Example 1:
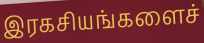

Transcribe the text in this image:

இரகசியங்களைச்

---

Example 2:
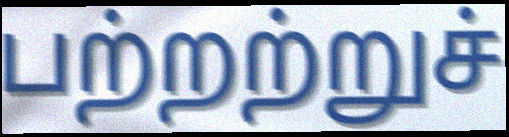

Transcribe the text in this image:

பற்றற்றுச்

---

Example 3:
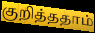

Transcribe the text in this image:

குறித்ததாம்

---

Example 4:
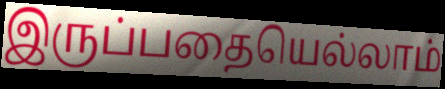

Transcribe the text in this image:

இருப்பதையெல்லாம்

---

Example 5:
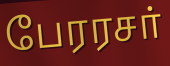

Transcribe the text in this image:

பேரரசர்